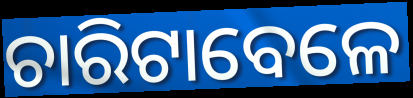
ଚାରିଟାବେଳେ